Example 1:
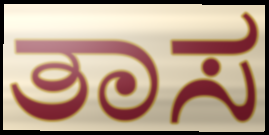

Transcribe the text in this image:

ತಾಸ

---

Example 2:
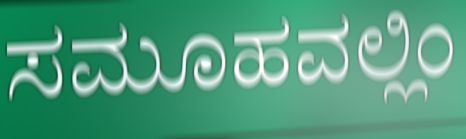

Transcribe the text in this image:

ಸಮೂಹವಲ್ಲಿಂ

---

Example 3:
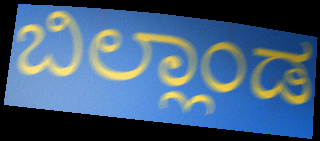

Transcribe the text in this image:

ಬಿಲ್ಲಾಂಡ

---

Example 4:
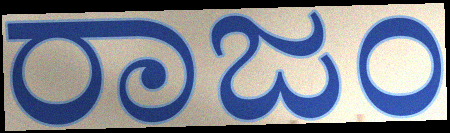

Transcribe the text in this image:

ರಾಜಂ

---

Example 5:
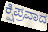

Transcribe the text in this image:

ಕ್ಷಿಪ್ರವಾದ